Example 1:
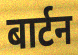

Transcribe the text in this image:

बार्टन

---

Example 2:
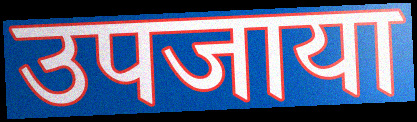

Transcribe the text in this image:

उपजाया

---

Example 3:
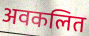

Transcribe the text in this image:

अवकलित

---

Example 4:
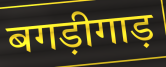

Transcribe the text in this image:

बगड़ीगाड़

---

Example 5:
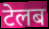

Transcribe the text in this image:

टेलब